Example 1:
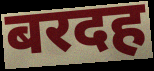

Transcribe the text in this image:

बरदह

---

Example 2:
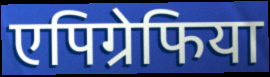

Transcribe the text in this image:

एपिग्रेफिया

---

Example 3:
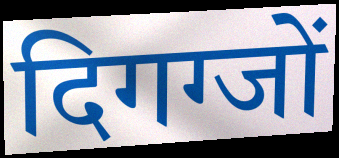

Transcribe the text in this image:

दिगग्जों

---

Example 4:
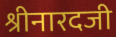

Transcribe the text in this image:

श्रीनारदजी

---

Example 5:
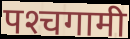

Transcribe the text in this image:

पश्चगामी